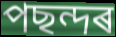
পছন্দৰ